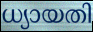
ധ്യായതി